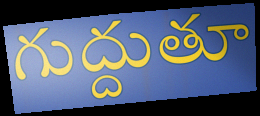
గుద్దుతూ